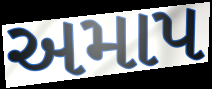
અમાપ